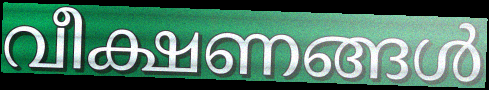
വീക്ഷണങ്ങൾ